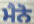
ਮੈਨੋ